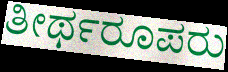
ತೀರ್ಥರೂಪರು